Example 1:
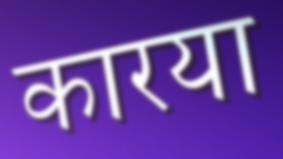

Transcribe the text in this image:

कारया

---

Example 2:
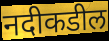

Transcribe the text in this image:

नदीकडील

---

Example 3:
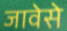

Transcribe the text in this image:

जावेसे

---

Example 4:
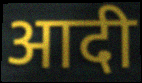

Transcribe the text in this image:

आदी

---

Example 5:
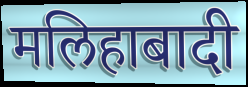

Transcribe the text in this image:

मलिहाबादी